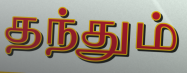
தந்தும்